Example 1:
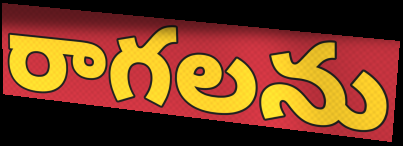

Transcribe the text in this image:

రాగలను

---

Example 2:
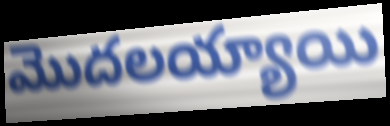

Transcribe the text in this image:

మొదలయ్యాయి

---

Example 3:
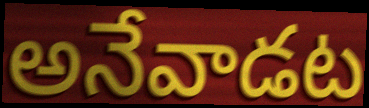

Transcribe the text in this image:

అనేవాడట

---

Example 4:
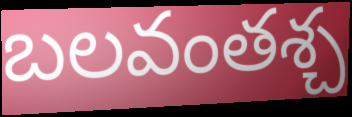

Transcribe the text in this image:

బలవంతశ్చ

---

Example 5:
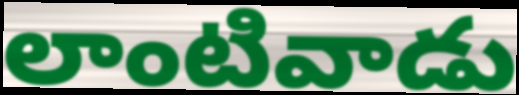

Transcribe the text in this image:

లాంటివాడు